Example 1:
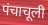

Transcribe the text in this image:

पंचाचूली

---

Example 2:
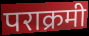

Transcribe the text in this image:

पराक्रमी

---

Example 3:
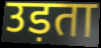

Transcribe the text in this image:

उड़ता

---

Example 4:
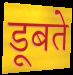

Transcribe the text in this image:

डूबते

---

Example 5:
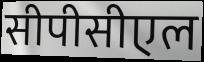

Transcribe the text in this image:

सीपीसीएल